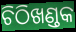
ଚିଠିଖଣ୍ଡକ